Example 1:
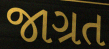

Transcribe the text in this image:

જાગ્રત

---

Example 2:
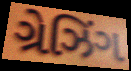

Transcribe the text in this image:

ગ્રેઝિંગ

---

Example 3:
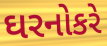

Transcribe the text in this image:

ઘરનોકરે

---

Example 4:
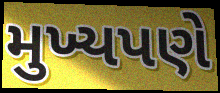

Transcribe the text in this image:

મુખ્યપણે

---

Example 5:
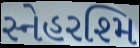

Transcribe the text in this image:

સ્નેહરશ્મિ